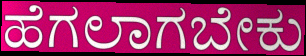
ಹೆಗಲಾಗಬೇಕು